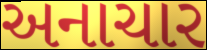
અનાચાર